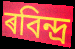
ৰবিন্দ্ৰ